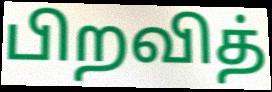
பிறவித்